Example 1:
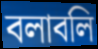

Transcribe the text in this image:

বলাবলি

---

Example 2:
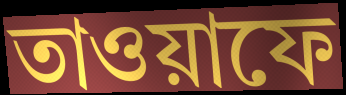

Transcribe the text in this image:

তাওয়াফে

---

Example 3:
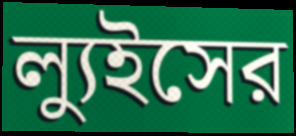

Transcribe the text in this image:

ল্যুইসের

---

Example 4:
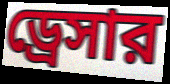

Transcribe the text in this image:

ড্রেসার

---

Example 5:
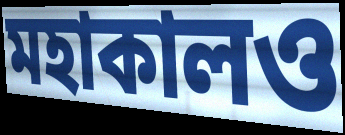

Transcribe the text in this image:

মহাকালও